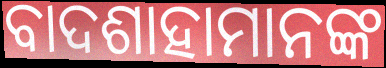
ବାଦଶାହାମାନଙ୍କ